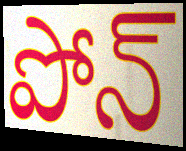
పోన్